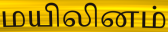
மயிலினம்